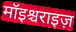
मॉइश्चराइज़